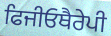
ਫਿਜੀਓਥੈਰੇਪੀ